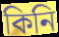
কিনি